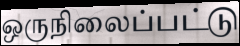
ஒருநிலைப்பட்டு